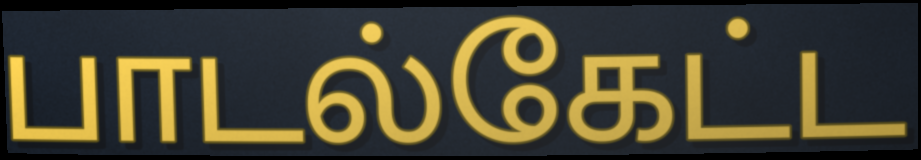
பாடல்கேட்ட